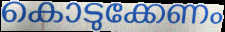
കൊടുക്കേണം